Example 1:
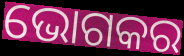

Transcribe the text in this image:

ଭୋଗକର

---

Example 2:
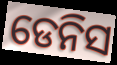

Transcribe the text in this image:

ଡେନିସ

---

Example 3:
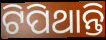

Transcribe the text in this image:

ଟିପିଥାନ୍ତି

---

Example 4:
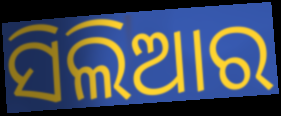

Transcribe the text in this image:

ସିଲିଆର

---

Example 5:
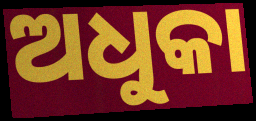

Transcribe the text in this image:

ଅଧୁକା